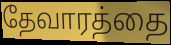
தேவாரத்தை